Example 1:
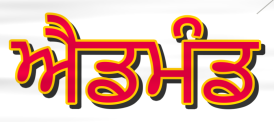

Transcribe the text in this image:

ਐਡਮੰਡ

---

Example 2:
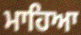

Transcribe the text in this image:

ਮਾਹਿਆ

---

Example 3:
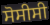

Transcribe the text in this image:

ਸੋਸੀਸੀ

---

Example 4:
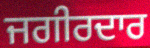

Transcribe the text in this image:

ਜਗੀਰਦਾਰ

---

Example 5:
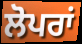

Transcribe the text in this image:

ਲੋਪਰਾਂ